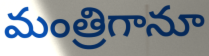
మంత్రిగానూ